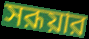
সরূয়ার